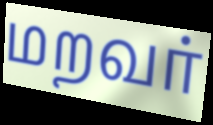
மறவர்